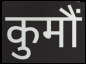
कुमौं